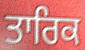
ਤਾਰਿਕ